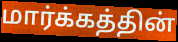
மார்க்கத்தின்